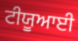
ਟੀਯੂਆਈ